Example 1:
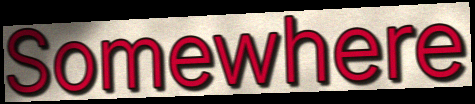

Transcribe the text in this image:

Somewhere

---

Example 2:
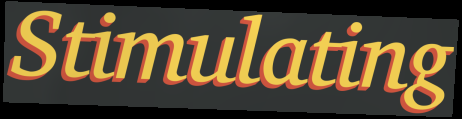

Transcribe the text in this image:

Stimulating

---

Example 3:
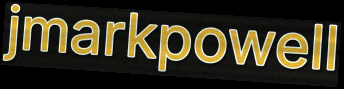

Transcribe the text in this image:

jmarkpowell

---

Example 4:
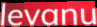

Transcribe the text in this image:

levanu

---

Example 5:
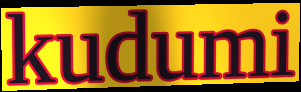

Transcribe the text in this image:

kudumi